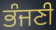
ਭੰਜਣੀ